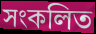
সংকলিত